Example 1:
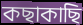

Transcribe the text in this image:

কছাকাছি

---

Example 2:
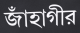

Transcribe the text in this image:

জাঁহাগীর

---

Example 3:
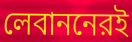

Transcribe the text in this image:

লেবাননেরই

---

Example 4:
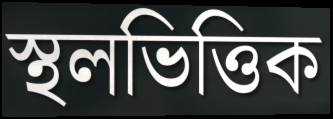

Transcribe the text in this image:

স্থলভিত্তিক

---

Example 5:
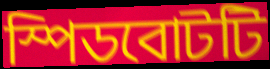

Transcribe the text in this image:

স্পিডবোটটি